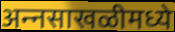
अन्नसाखळीमध्ये